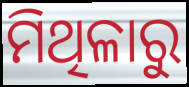
ମିଥିଳାରୁ